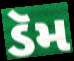
ડૅમ